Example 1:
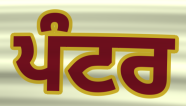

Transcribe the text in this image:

ਪੰਟਰ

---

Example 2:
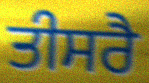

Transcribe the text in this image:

ਤੀਸਰੈ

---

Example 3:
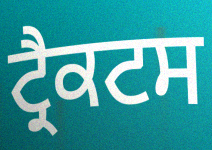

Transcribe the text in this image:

ਟ੍ਰੈਕਟਸ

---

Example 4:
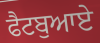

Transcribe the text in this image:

ਫੈਟਬੁਆਏ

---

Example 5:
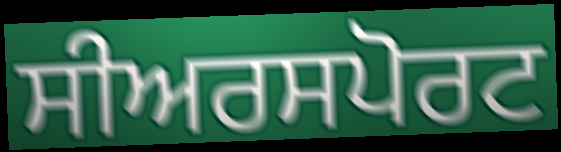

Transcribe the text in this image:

ਸੀਅਰਸਪੋਰਟ